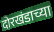
दोरखंडाच्या